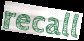
recall